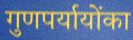
गुणपर्यायोंका